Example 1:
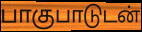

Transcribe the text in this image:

பாகுபாடுடன்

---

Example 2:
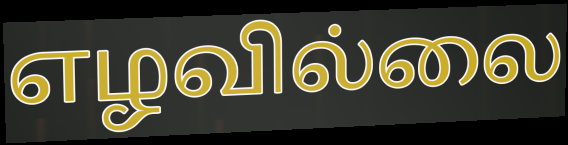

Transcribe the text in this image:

எழவில்லை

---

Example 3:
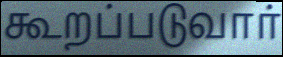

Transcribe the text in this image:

கூறப்படுவார்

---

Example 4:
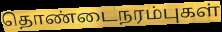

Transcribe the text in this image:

தொண்டைநரம்புகள்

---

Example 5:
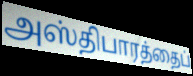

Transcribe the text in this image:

அஸ்திபாரத்தைப்